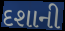
દશાની